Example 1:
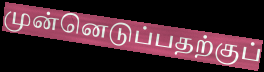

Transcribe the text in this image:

முன்னெடுப்பதற்குப்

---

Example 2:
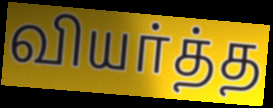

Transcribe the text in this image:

வியர்த்த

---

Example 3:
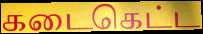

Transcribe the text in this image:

கடைகெட்ட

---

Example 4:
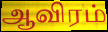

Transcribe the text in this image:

ஆவிரம்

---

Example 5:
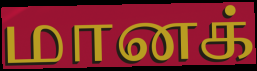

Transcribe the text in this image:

மானக்